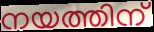
നയത്തിന്